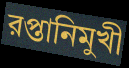
রপ্তানিমুখী